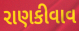
રાણકીવાવ